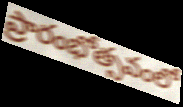
ప్రారంభోత్సవంలో